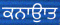
ਕਨਾਉਾਤ